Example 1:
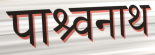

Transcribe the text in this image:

पाश्र्वनाथ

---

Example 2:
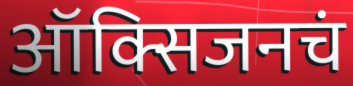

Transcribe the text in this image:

ऑक्सिजनचं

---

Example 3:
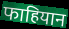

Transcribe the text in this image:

फाहियान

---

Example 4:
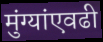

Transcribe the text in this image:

मुंग्यांएवढी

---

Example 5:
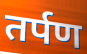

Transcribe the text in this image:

तर्पण